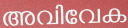
അവിവേക